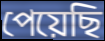
পেয়েছি